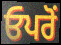
ਓਪਰੋਂ